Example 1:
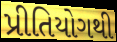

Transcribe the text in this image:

પ્રીતિયોગથી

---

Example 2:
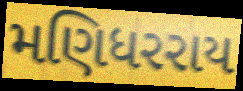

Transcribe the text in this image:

મણિધરરાય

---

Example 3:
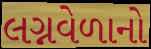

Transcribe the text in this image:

લગ્નવેળાનો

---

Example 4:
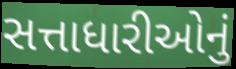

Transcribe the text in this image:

સત્તાધારીઓનું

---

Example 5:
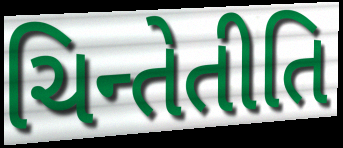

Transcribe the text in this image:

ચિન્તેતીતિ